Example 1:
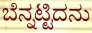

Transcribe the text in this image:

ಬೆನ್ನಟ್ಟಿದನು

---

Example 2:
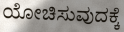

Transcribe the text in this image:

ಯೋಚಿಸುವುದಕ್ಕೆ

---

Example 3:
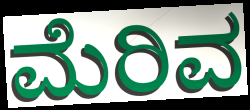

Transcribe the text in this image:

ಮೆರಿವ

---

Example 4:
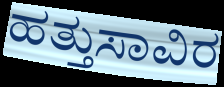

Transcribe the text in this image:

ಹತ್ತುಸಾವಿರ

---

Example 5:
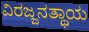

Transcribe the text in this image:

ವಿರಜ್ಜನತ್ಥಾಯ